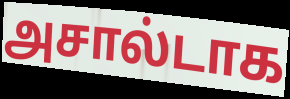
அசால்டாக